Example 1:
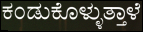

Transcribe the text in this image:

ಕಂಡುಕೊಳ್ಳುತ್ತಾಳೆ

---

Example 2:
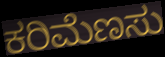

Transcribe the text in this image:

ಕರಿಮೆಣಸು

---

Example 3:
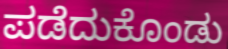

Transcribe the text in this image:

ಪಡೆದುಕೊಂಡು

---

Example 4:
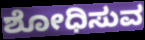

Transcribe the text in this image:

ಶೋಧಿಸುವ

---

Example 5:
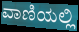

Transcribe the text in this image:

ವಾಣಿಯಲ್ಲಿ